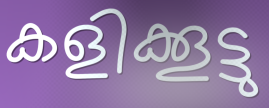
കളിക്കൂട്ടു